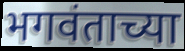
भगवंताच्या